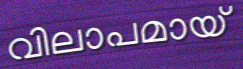
വിലാപമായ്